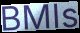
BMIs